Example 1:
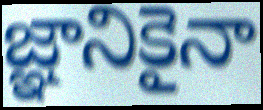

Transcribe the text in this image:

జ్ఞానికైనా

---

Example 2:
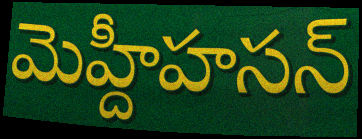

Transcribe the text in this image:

మెహ్దీహసన్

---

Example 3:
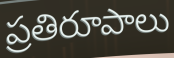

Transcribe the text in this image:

ప్రతిరూపాలు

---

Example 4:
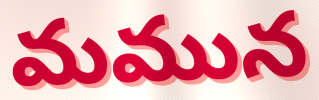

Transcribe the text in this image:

మమున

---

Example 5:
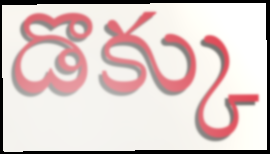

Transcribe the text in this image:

డొక్కు